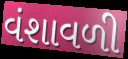
વંશાવળી